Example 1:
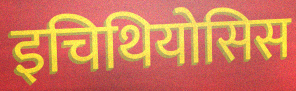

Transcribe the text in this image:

इचिथियोसिस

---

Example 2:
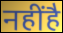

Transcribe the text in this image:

नहींहै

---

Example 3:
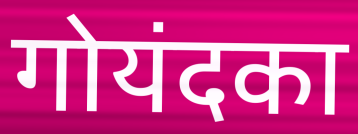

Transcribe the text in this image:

गोयंदका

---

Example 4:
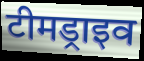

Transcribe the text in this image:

टीमड्राइव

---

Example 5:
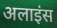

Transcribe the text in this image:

अलाइंस